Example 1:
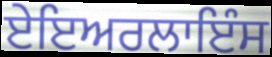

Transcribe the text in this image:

ਏਇਅਰਲਾਇੰਸ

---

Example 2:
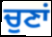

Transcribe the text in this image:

ਚੁਣਾਂ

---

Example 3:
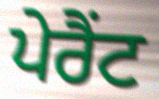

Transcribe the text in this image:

ਪੇਰੈਂਟ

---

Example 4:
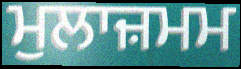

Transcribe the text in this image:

ਮੁਲਾਜ਼ਮਮ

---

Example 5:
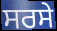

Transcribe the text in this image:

ਸਰਸੇ